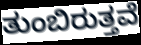
ತುಂಬಿರುತ್ತವೆ